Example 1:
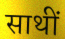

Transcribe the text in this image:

साथीं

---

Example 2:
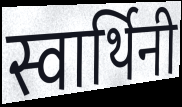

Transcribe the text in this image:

स्वार्थिनी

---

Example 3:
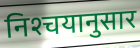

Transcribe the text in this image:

निश्चयानुसार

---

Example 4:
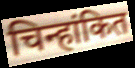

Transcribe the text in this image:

चिन्हांकित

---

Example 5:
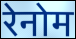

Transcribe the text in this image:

रेनोम